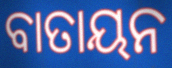
ବାତାୟନ